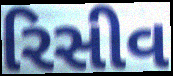
રિસીવ